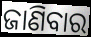
ଜାଣିବାର